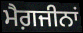
ਮੈਗ਼ਜੀਨਾਂ